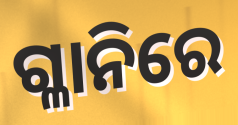
ଗ୍ଳାନିରେ